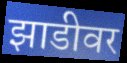
झाडीवर